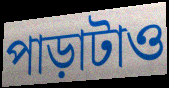
পাড়াটাও